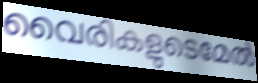
വൈരികളുടെമേൽ